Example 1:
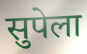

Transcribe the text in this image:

सुपेला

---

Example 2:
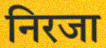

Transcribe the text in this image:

निरजा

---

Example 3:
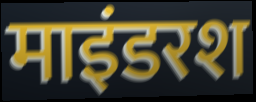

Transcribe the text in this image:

माइंडरश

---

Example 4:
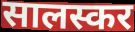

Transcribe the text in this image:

सालस्कर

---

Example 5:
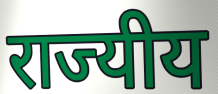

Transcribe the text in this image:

राज्यीय